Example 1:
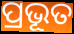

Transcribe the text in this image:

ପ୍ରଭୂତ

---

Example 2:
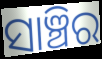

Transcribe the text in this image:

ସାଞ୍ଚିର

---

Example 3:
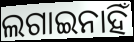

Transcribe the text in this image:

ଲଗାଇନାହିଁ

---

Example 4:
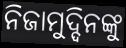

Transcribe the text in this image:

ନିଜାମୁଦ୍ଦିନଙ୍କୁ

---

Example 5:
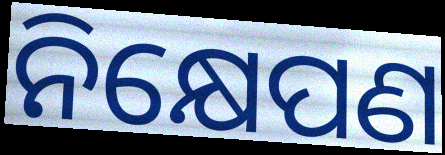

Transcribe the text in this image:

ନିକ୍ଷେପଣ